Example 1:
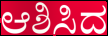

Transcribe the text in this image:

ಆಶಿಸಿದ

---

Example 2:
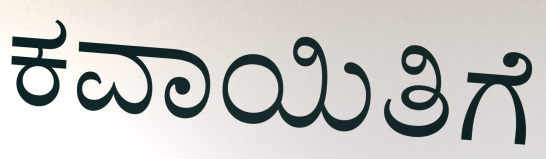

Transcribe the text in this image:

ಕವಾಯಿತಿಗೆ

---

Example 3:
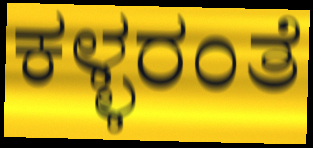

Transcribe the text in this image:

ಕಳ್ಳರಂತೆ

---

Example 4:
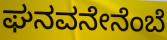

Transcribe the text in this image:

ಘನವನೇನೆಂಬೆ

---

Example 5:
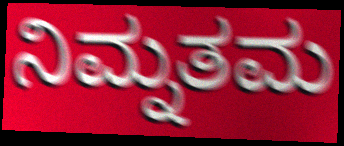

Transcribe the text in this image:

ನಿಮ್ನತಮ